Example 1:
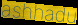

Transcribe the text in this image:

ashhadu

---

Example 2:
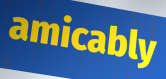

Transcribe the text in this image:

amicably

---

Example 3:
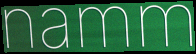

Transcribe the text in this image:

namm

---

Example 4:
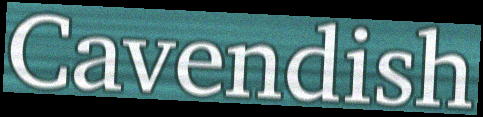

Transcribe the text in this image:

Cavendish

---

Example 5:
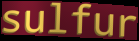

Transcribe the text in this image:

sulfur